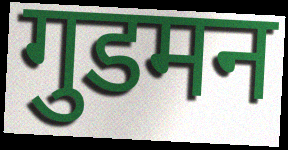
गुडमन